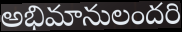
అభిమానులందరి